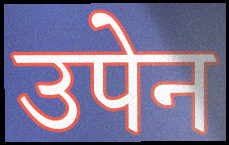
उपेन